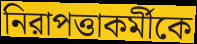
নিরাপত্তাকর্মীকে